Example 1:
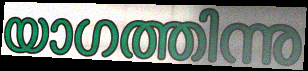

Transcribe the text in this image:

യാഗത്തിന്നു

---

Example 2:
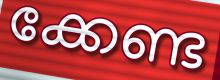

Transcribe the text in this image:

ക്കേണ്ട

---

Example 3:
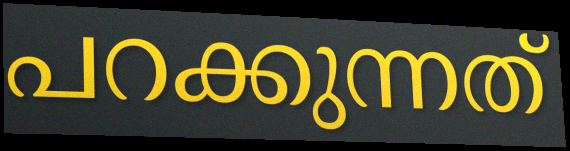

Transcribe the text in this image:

പറക്കുന്നത്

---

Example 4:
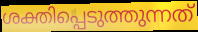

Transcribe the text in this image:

ശക്തിപ്പെടുത്തുന്നത്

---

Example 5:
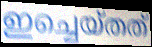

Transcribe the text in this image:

ഇച്ചെയ്തത്